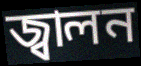
জ্বালন